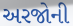
અરજોની